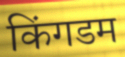
किंगडम